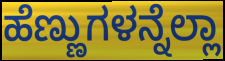
ಹೆಣ್ಣುಗಳನ್ನೆಲ್ಲಾ